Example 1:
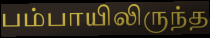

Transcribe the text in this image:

பம்பாயிலிருந்த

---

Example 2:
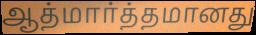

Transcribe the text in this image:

ஆத்மார்த்தமானது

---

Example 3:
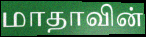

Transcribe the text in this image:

மாதாவின்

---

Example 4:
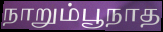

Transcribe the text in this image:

நாறும்பூநாத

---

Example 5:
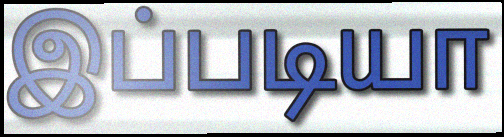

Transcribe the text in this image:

இப்படியா